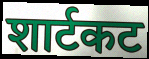
शार्टकट